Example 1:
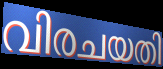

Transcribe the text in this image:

വിരചയതി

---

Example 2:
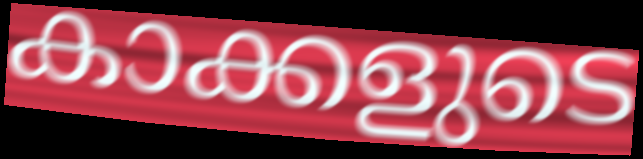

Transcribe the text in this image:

കാക്കളുടെ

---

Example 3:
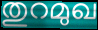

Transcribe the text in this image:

തുറമുഖ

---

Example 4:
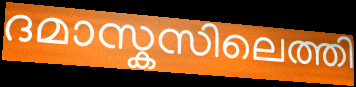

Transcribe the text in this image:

ദമാസ്കസിലെത്തി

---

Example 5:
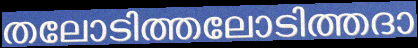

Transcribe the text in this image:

തലോടിത്തലോടിത്തദാ